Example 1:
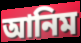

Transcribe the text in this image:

আনিম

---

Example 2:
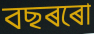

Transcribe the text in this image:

বছৰৰো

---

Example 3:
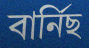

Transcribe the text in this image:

বাৰ্নিছ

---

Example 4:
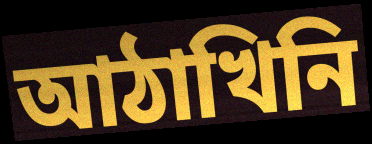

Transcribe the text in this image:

আঠাখিনি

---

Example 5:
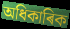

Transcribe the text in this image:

অধিকাৰিক